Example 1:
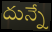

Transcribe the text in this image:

దున్నే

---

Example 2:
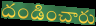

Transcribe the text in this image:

దండించారు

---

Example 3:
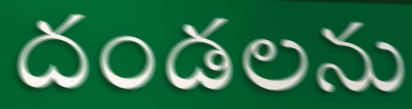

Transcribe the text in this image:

దండలను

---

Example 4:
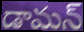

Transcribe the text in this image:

డామన్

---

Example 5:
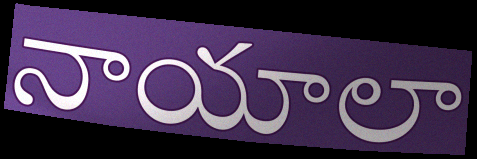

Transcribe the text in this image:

నాయాలా